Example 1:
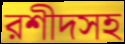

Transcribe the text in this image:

রশীদসহ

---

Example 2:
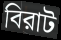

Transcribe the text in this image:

বিরাট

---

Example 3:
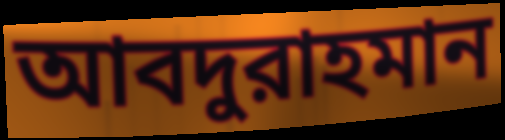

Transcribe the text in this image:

আবদুরাহমান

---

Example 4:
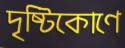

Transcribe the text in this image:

দৃষ্টিকোণে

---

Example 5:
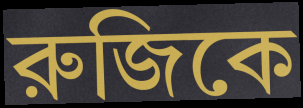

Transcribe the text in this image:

রুজিকে